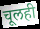
चूलही